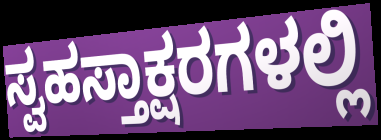
ಸ್ವಹಸ್ತಾಕ್ಷರಗಳಲ್ಲಿ